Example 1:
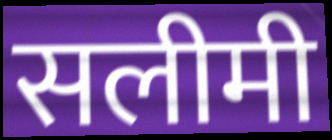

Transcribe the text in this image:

सलीमी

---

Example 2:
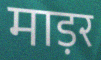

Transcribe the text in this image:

माड़र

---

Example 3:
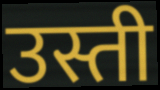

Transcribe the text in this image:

उस्ती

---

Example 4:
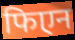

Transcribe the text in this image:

फिएन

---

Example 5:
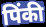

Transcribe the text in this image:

पिंकी